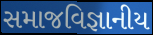
સમાજવિજ્ઞાનીય